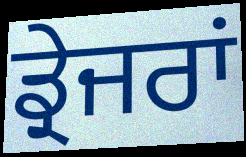
ਡ੍ਰੇਜਰਾਂ